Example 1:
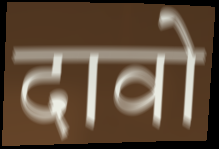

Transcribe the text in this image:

दावो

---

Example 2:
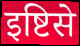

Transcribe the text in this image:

इष्टिसे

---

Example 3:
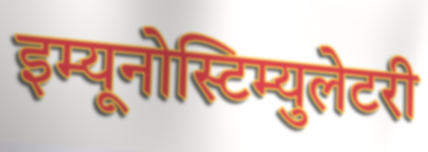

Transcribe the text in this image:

इम्यूनोस्टिम्युलेटरी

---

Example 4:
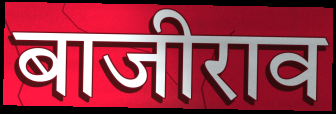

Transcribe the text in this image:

बाजीराव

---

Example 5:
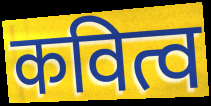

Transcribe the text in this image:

कवित्व